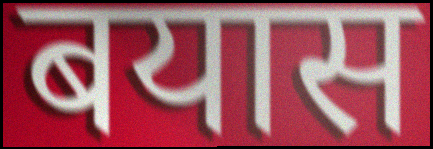
बयास